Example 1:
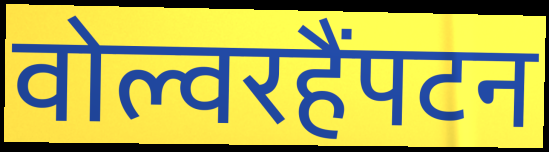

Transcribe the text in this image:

वोल्वरहैंपटन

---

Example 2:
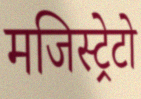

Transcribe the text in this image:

मजिस्ट्रेटो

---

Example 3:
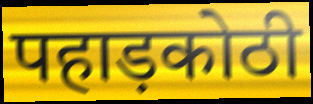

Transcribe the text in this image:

पहाड़कोठी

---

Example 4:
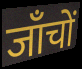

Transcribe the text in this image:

जाँचों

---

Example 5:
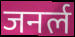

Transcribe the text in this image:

जनर्ल